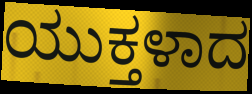
ಯುಕ್ತಳಾದ